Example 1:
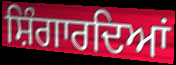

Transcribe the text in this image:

ਸ਼ਿੰਗਾਰਦਿਆਂ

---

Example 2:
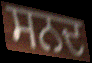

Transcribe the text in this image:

ਸਨਦ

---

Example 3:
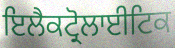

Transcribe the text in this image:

ਇਲੈਕਟ੍ਰੋਲਾਈਟਿਕ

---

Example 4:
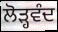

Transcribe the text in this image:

ਲੋੜ੍ਹਵੰਦ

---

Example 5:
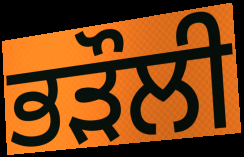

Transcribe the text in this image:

ਭੜੌਲੀ